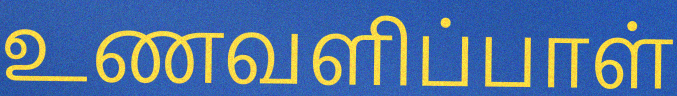
உணவளிப்பாள்